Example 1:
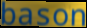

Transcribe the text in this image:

bason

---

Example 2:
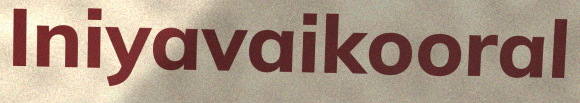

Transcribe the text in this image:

Iniyavaikooral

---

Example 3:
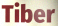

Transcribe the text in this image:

Tiber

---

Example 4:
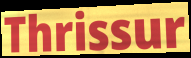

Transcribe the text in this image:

Thrissur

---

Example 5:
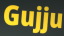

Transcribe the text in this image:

Gujju